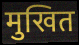
मुखित